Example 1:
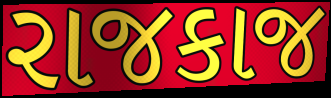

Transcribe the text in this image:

રાજકાજ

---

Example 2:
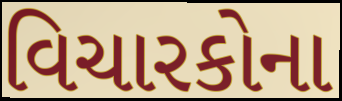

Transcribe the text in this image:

વિચારકોના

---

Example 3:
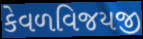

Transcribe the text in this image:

કેવળવિજયજી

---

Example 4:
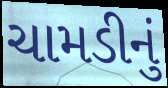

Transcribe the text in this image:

ચામડીનું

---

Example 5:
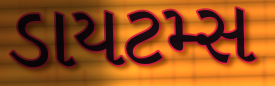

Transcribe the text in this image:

ડાયટમ્સ